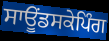
ਸਾਊਂਡਸਕੇਪਿੰਗ